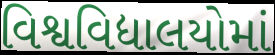
વિશ્વવિદ્યાલયોમાં